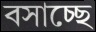
বসাচ্ছে